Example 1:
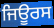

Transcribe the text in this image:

ਜਿਊਰਸ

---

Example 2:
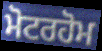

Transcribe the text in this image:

ਮੋਟਰਹੋਮ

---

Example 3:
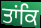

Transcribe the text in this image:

ਤਾਂਕਿ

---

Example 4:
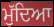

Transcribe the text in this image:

ਮੁੱਦਿਆ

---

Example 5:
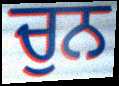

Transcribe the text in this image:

ਚੁਨ